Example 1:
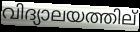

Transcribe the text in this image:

വിദ്യാലയത്തില്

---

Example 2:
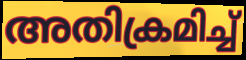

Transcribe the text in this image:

അതിക്രമിച്ച്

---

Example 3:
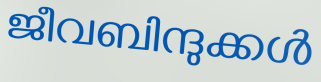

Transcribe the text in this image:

ജീവബിന്ദുക്കൾ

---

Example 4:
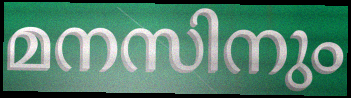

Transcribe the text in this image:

മനസിനും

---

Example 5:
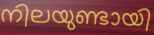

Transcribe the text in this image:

നിലയുണ്ടായി